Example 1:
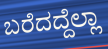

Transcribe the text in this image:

ಬರೆದದ್ದೆಲ್ಲಾ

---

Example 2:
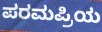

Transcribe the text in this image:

ಪರಮಪ್ರಿಯ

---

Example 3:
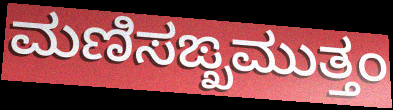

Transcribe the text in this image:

ಮಣಿಸಙ್ಖಮುತ್ತಂ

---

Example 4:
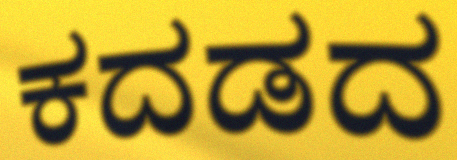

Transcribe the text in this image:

ಕದಡದ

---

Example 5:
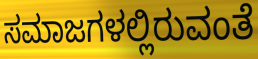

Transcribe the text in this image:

ಸಮಾಜಗಳಲ್ಲಿರುವಂತೆ